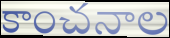
కాంచనాల